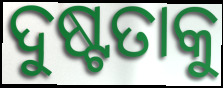
ଦୁଷ୍ଟତାକୁ